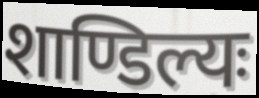
शाण्डिल्यः